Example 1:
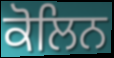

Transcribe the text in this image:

ਕੋਲਿਨ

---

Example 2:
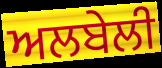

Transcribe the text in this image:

ਅਲਬੇਲੀ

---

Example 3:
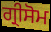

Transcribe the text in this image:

ਗ੍ਰੀਸੋਮ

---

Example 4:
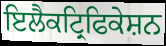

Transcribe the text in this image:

ਇਲੈਕਟ੍ਰਿਫਿਕੇਸ਼ਨ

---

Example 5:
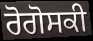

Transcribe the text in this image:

ਰੋਗੋਸਕੀ